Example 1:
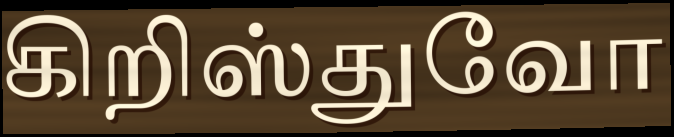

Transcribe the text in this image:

கிறிஸ்துவோ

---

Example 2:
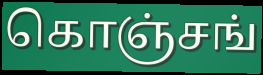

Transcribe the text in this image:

கொஞ்சங்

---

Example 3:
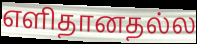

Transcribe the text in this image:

எளிதானதல்ல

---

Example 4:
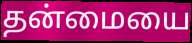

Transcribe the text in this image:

தன்மையை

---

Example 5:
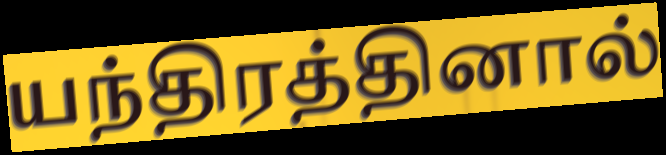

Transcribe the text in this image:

யந்திரத்தினால்